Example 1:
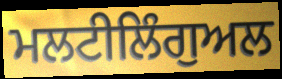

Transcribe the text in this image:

ਮਲਟੀਲਿੰਗੁਅਲ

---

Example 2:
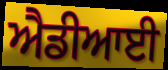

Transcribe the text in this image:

ਐਡੀਆਈ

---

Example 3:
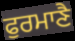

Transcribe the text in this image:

ਫੁਰਮਾਣੈ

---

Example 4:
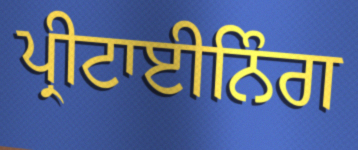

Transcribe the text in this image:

ਪ੍ਰੀਟਾਈਨਿੰਗ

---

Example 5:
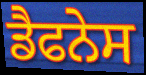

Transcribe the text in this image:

ਡੈਫਨੇਸ